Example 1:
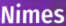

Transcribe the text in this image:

Nimes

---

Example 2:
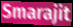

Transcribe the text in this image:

Smarajit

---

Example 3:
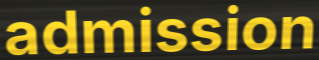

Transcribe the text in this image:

admission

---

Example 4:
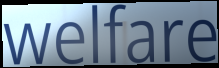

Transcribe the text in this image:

welfare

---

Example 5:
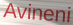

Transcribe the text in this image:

Avineni